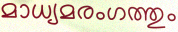
മാധ്യമരംഗത്തും